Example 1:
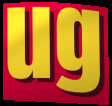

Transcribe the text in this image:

ug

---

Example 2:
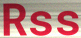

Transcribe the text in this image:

Rss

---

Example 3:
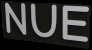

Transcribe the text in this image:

NUE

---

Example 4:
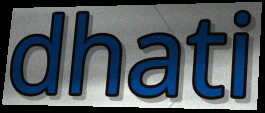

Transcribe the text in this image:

dhati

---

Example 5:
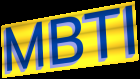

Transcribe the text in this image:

MBTI